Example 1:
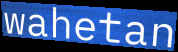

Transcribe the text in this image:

wahetan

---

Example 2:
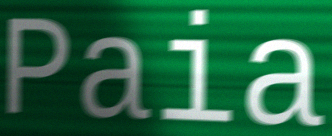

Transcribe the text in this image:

Paia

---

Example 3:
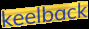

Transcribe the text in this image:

keelback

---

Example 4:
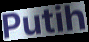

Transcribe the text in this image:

Putih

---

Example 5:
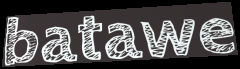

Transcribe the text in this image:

batawe